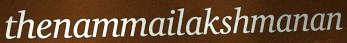
thenammailakshmanan